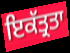
ਇਕੱਤ੍ਰਤਾ